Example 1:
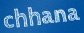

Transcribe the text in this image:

chhana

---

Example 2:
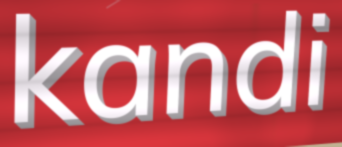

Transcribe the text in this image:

kandi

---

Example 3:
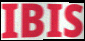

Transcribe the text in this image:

IBIS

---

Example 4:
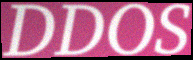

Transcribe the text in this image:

DDOS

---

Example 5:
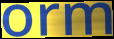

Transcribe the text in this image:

orm